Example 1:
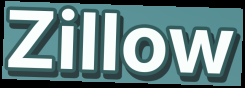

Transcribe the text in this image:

Zillow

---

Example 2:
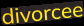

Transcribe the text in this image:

divorcee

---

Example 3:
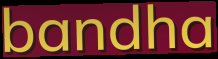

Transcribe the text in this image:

bandha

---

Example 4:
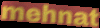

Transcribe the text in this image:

mehnat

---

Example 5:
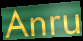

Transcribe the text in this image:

Anru